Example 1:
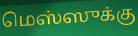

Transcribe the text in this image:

மெஸ்ஸுக்கு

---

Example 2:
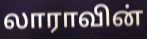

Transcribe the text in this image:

லாராவின்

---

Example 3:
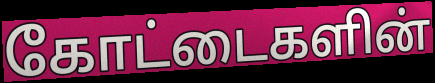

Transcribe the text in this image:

கோட்டைகளின்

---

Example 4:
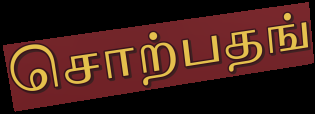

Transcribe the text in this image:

சொற்பதங்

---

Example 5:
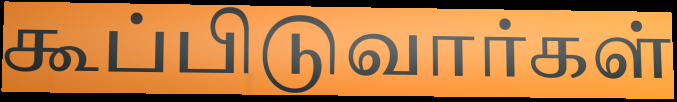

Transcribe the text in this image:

கூப்பிடுவார்கள்